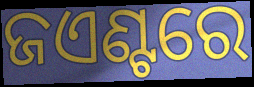
ଜଏଣ୍ଟରେ